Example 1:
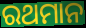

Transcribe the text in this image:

ରଥମାନ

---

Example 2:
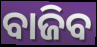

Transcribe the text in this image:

ବାଜିବ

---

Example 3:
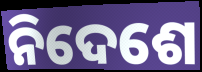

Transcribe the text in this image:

ନିଦେଶେ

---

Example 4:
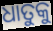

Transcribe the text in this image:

ଧାତୁକୁ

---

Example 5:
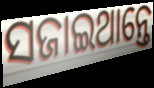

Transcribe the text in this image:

ସଜାଇଥାନ୍ତେ